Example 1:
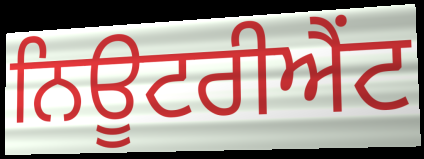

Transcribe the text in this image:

ਨਿਊਟਰੀਐਂਟ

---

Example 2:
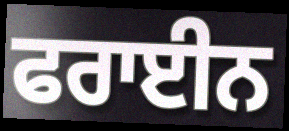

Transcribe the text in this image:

ਫਰਾਈਨ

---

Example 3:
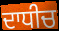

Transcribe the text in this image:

ਦਾਧੀਚ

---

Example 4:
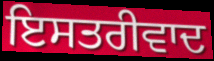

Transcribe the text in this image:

ਇਸਤਰੀਵਾਦ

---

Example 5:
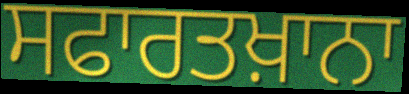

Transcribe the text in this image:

ਸਫਾਰਤਖ਼ਾਨਾ